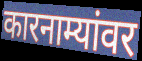
कारनाम्यांवर